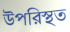
উপরিস্থত